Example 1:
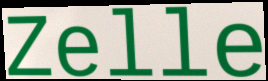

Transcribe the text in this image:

Zelle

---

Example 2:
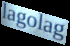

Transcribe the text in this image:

lagolag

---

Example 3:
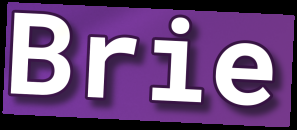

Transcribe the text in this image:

Brie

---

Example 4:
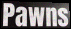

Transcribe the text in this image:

Pawns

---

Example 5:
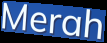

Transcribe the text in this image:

Merah